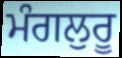
ਮੰਗਲੁਰੂ